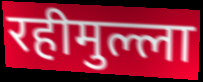
रहीमुल्ला